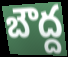
బౌద్ద